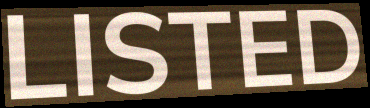
LISTED